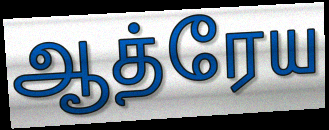
ஆத்ரேய